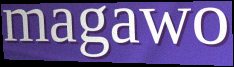
magawo